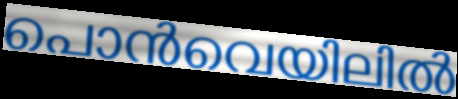
പൊൻവെയിലിൽ